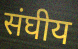
संघीय